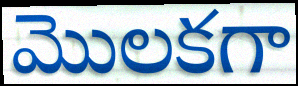
మొలకగా